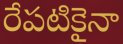
రేపటికైనా